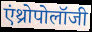
एंथ्रोपोलॉजी